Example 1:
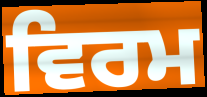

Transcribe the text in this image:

ਵਿਰਮ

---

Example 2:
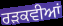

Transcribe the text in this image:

ਰੜਕਵੀਆਂ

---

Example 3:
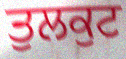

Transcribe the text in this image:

ਤੁਲਕੁਟ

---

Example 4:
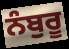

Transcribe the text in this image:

ਨੰਬੁਰੂ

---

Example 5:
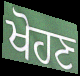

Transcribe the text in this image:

ਖੋਹਣ